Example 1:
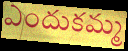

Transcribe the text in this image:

ఎందుకమ్మ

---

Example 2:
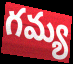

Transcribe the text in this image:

గమ్య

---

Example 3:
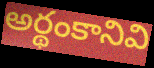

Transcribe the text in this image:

అర్థంకానివి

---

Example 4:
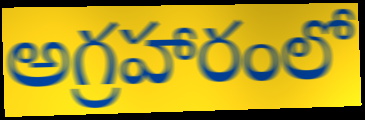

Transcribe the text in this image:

అగ్రహారంలో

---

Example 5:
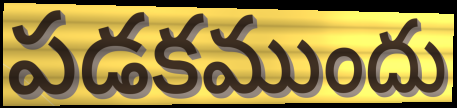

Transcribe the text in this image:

పడకముందు